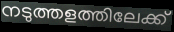
നടുത്തളത്തിലേക്ക്